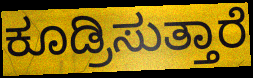
ಕೂಡ್ರಿಸುತ್ತಾರೆ